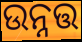
ଉନ୍ନତ୍ତ